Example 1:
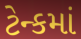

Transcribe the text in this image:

ટેન્કમાં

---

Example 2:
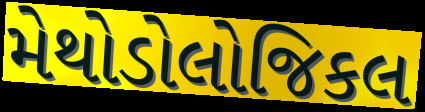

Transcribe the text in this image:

મેથોડોલોજિકલ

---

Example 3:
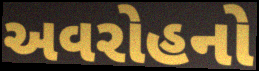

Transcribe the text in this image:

અવરોહનો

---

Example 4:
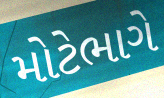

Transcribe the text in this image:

મોટેભાગે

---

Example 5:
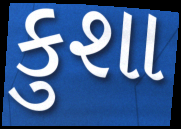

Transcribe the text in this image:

કુશા